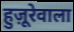
हुज़ूरेवाला